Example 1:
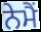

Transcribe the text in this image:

ਨੇਮੈਂ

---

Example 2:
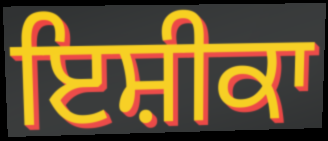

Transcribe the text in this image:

ਇਸ਼ੀਕਾ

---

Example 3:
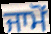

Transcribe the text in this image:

ਜਾਮੋਂ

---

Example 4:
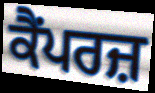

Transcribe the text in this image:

ਕੈਂਪਰਜ਼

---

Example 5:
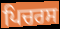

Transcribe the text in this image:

ਪਿਚਰਸ